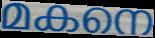
മകനെ